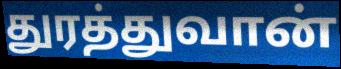
துரத்துவான்